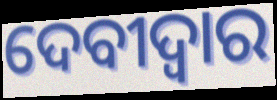
ଦେବୀଦ୍ବାର